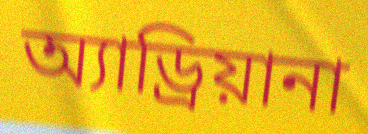
অ্যাড্রিয়ানা